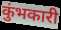
कुंभकारी